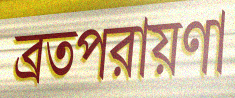
ব্রতপরায়ণা